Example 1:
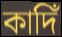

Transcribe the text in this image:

কাদিঁ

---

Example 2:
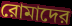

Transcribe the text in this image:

রোমাদের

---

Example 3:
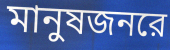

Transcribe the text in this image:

মানুষজনরে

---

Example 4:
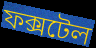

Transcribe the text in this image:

ফক্সটেল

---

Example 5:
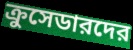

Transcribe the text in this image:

ক্রুসেডারদের